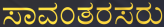
ಸಾವಂತರಸರು